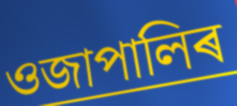
ওজাপালিৰ